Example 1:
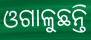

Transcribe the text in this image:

ଓଗାଳୁଛନ୍ତି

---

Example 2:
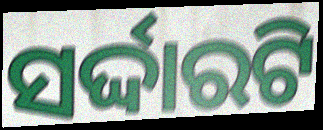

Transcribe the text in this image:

ସର୍ଦ୍ଦାରଟି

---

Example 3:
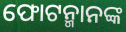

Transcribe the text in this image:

ଫୋଟନ୍ମାନଙ୍କ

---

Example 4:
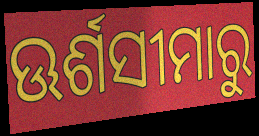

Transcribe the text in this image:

ଊର୍ଶସୀମାରୁ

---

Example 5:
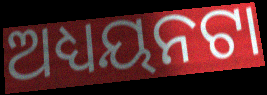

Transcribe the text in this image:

ଅଧ୍ୟୟନଟା